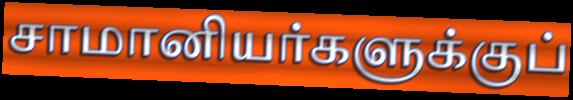
சாமானியர்களுக்குப்